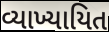
વ્યાખ્યાયિત